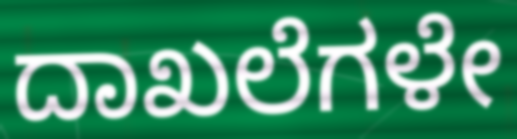
ದಾಖಲೆಗಳೇ